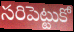
సరిపెట్టుకో